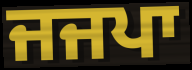
ਜਜਪਾ